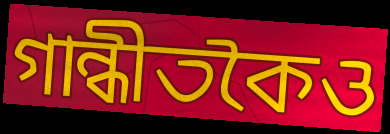
গান্ধীতকৈও